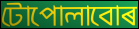
টোপোলাবোৰ